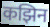
कझिन